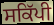
ਸਕਿੱਪੀ